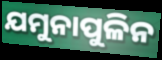
ଯମୁନାପୁଳିନ